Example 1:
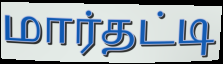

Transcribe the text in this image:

மார்தட்டி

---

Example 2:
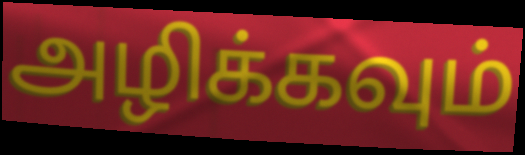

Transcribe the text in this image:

அழிக்கவும்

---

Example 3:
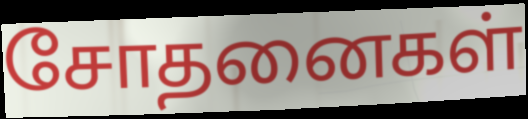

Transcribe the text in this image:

சோதனைகள்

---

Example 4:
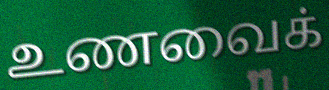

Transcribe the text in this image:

உணவைக்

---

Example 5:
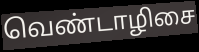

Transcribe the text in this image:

வெண்டாழிசை